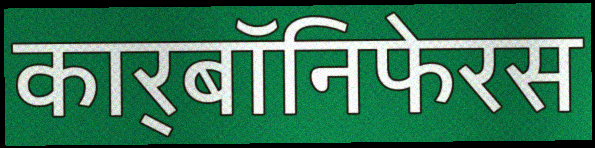
कार्‌बॉनिफेरस